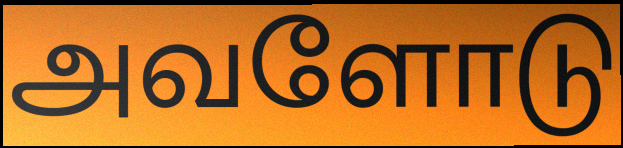
அவளோடு